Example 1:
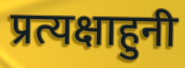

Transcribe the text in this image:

प्रत्यक्षाहुनी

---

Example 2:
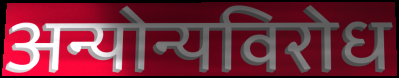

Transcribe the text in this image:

अन्योन्यविरोध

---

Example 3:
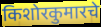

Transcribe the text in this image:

किशोरकुमारचे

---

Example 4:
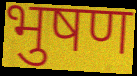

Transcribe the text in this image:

भुषण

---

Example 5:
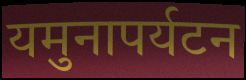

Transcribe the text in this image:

यमुनापर्यटन